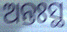
ଅନ୍ତଃସ୍ଥ